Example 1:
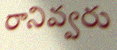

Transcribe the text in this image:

రానివ్వరు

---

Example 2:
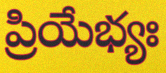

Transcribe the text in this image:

ప్రియేభ్యః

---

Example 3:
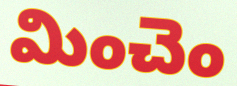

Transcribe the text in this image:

మించెం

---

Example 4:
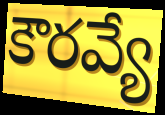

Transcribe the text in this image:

కౌరవ్యే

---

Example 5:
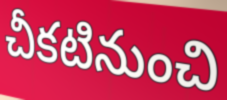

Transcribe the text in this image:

చీకటినుంచి